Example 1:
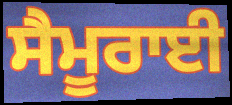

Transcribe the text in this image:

ਸੈਮੂਰਾਈ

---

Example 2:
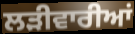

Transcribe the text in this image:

ਲੜੀਵਾਰੀਆਂ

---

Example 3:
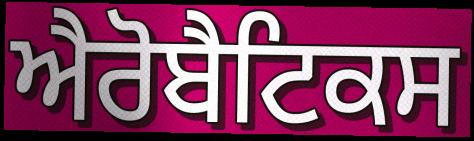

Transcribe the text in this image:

ਐਰੋਬੈਟਿਕਸ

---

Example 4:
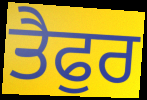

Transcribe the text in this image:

ਤੈਫੁਰ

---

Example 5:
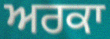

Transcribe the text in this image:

ਅਰਕਾ